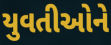
યુવતીઓને